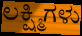
ಲಕ್ಷ್ಮಿಗಳು